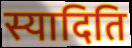
स्यादिति